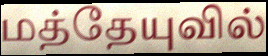
மத்தேயுவில்